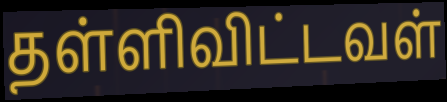
தள்ளிவிட்டவள்